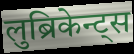
लुब्रिकेन्ट्स